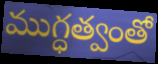
ముగ్ధత్వంతో